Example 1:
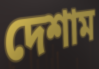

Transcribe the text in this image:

দেশাম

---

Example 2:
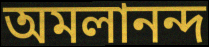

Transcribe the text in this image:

অমলানন্দ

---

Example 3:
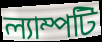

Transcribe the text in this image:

ল্যাম্পটি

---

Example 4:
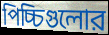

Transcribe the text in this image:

পিচ্চিগুলোর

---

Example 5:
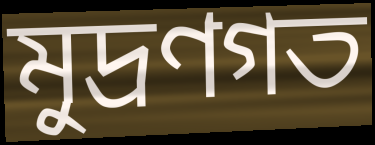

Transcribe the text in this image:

মুদ্রণগত